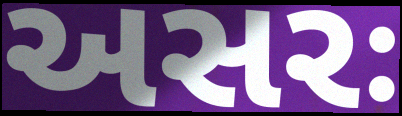
અસરઃ